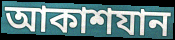
আকাশযান